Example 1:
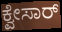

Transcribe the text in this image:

ಕ್ವೇಸಾರ್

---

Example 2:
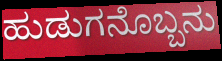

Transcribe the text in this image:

ಹುಡುಗನೊಬ್ಬನು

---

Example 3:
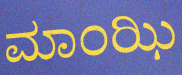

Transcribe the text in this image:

ಮಾಂಝಿ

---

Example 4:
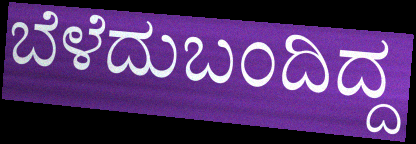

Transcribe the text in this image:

ಬೆಳೆದುಬಂದಿದ್ದ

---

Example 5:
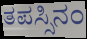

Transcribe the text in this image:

ತಪಸ್ಸಿನಂ